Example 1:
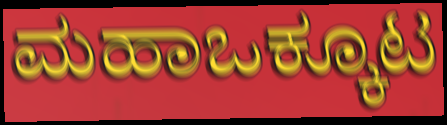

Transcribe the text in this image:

ಮಹಾಒಕ್ಕೂಟ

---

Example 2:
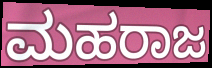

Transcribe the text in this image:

ಮಹರಾಜ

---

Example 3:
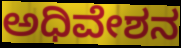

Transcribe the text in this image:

ಅಧಿವೇಶನ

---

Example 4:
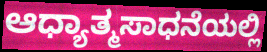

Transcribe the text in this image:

ಆಧ್ಯಾತ್ಮಸಾಧನೆಯಲ್ಲಿ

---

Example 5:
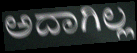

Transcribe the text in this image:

ಅದಾಗಿಲ್ಲ